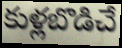
కుళ్లబొడిచే